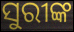
ସୁରୀଙ୍କ